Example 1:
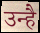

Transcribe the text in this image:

उन्है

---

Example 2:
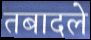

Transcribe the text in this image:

तबादले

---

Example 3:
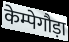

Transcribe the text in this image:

केम्पेगौड़ा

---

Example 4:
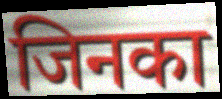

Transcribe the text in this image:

जिनका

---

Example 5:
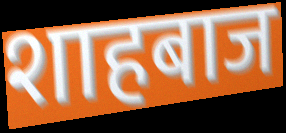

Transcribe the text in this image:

शाहबाज